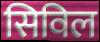
सिविल